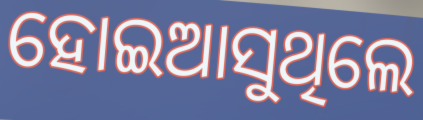
ହୋଇଆସୁଥିଲେ